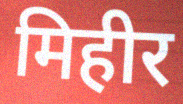
मिहीर